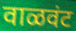
वाळवंट